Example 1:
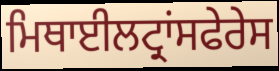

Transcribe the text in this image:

ਮਿਥਾਈਲਟ੍ਰਾਂਸਫੇਰੇਸ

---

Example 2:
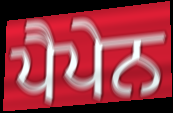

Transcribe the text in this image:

ਪੈਪੇਨ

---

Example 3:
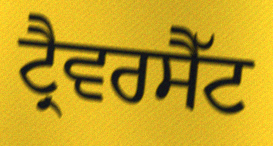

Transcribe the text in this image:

ਟ੍ਰੈਵਰਸੈੱਟ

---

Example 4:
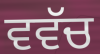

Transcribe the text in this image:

ਵਵੱਚ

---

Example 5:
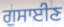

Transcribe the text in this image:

ਗੁਸਾਈਣ